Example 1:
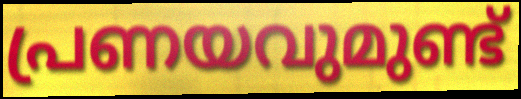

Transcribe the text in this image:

പ്രണയവുമുണ്ട്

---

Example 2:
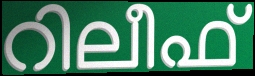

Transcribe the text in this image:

റിലീഫ്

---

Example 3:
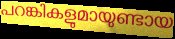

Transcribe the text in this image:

പറങ്കികളുമായുണ്ടായ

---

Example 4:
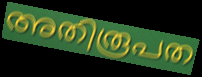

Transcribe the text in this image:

അതിരൂപത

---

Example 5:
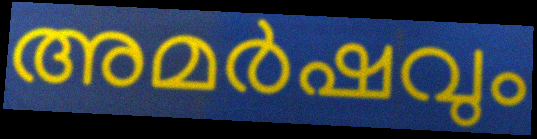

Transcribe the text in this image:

അമർഷവും